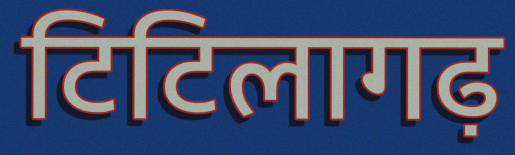
टिटिलागढ़